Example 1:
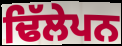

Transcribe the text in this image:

ਢਿੱਲੇਪਨ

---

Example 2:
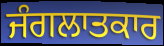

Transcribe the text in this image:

ਜੰਗਲਾਤਕਾਰ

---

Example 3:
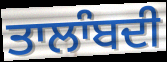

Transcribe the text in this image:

ਤਾਲਾੰਬਦੀ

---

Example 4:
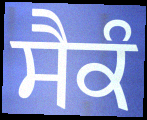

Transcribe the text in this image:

ਸੈਕੰ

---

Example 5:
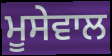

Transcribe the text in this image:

ਮੂਸੇਵਾਲ